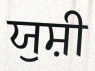
ਯੁਸ਼ੀ